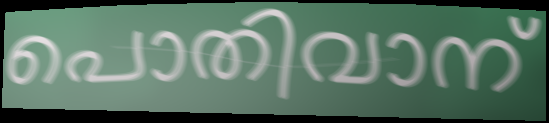
പൊതിവാന്